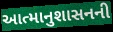
આત્માનુશાસનની